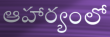
ఆహార్యంలో